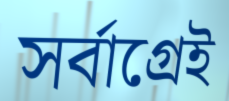
সর্বাগ্রেই